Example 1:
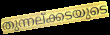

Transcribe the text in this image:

തുന്നല്ക്കടയുടെ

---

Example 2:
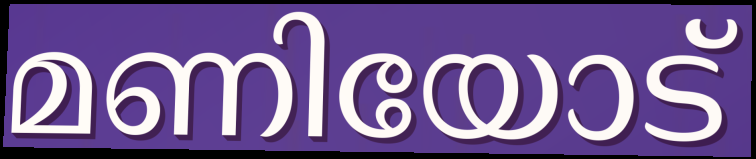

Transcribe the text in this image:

മണിയോട്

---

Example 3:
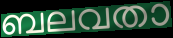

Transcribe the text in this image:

ബലവതാ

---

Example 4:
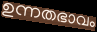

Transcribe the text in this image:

ഉന്നതഭാവം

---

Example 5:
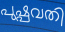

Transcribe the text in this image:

പുഷ്പവതി